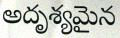
అదృశ్యమైన